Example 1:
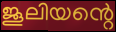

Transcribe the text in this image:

ജൂലിയന്റെ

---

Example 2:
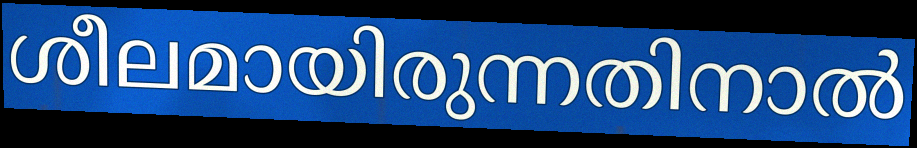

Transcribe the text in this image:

ശീലമായിരുന്നതിനാൽ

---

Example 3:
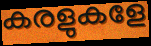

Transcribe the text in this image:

കരളുകളേ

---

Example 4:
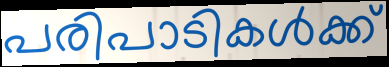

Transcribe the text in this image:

പരിപാടികൾക്ക്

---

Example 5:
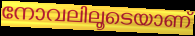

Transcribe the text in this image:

നോവലിലൂടെയാണ്